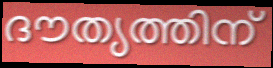
ദൗത്യത്തിന്